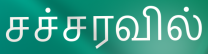
சச்சரவில்